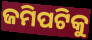
ଜମିପଟିକୁ